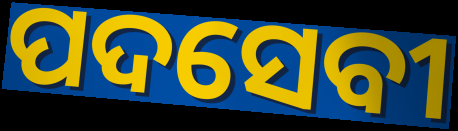
ପଦସେବୀ